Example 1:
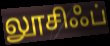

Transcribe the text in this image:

லூசிஃப்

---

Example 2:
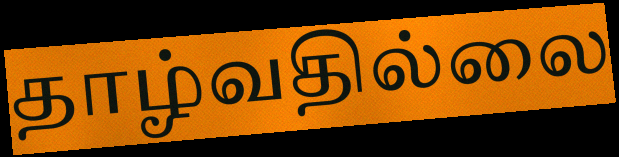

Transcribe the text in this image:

தாழ்வதில்லை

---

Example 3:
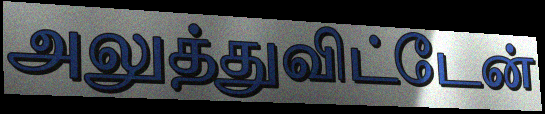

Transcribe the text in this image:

அலுத்துவிட்டேன்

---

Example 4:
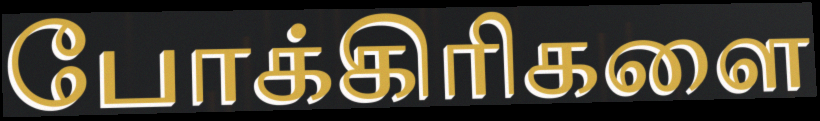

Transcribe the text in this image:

போக்கிரிகளை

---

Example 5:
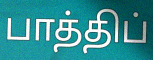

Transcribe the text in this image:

பாத்திப்